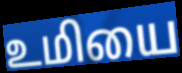
உமியை